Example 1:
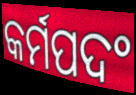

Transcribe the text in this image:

କର୍ମପଦଂ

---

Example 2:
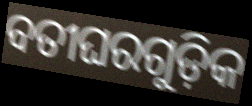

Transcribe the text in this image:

ବତୀଘରଗୁଡ଼ିକ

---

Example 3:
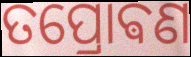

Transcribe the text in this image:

ତପ୍ରୋଵଣ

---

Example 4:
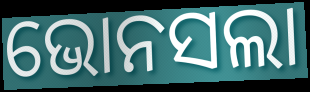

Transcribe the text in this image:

ଭୋନସଲା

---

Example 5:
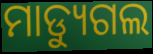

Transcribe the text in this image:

ମାଡ୍ୟୁଗଲ